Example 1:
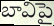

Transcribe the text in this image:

బావిపై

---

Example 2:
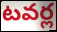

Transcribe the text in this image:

టవర్ల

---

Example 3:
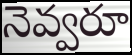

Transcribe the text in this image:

నెవ్వరూ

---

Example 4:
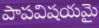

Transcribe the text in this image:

పాపవిషయమై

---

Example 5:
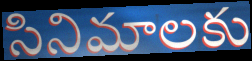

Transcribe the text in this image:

సినిమాలకు